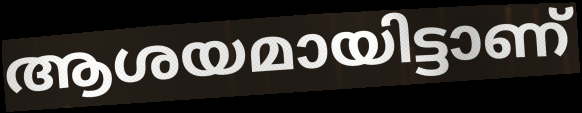
ആശയമായിട്ടാണ്